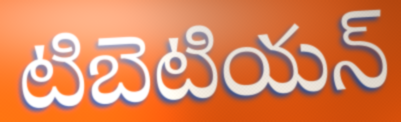
టిబెటియన్